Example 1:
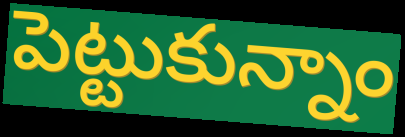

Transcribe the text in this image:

పెట్టుకున్నాం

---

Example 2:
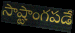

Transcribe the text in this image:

సాష్టాంగపడే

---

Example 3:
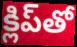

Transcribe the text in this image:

క్లిప్‌తో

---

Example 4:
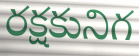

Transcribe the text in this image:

రక్షకునిగ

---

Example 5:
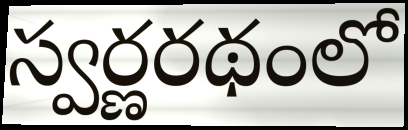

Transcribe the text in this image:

స్వర్ణరథంలో